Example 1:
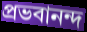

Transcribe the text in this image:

প্রভবানন্দ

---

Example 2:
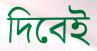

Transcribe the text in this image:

দিবেই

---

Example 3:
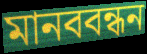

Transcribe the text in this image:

মানববন্ধন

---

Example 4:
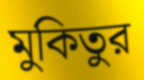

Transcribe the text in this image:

মুকিতুর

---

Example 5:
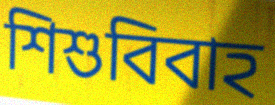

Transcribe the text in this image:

শিশুবিবাহ